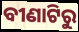
ବୀଣାଟିରୁ